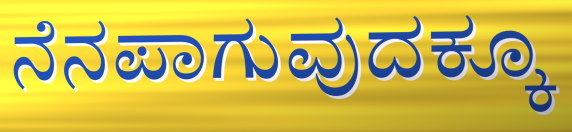
ನೆನಪಾಗುವುದಕ್ಕೂ